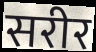
सरीर